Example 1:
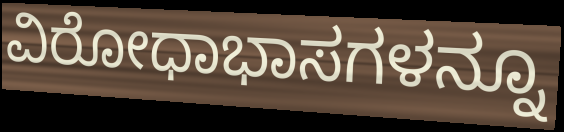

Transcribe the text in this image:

ವಿರೋಧಾಭಾಸಗಳನ್ನೂ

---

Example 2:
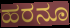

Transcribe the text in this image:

ಹರನೂ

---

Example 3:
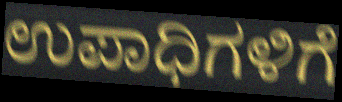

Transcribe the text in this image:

ಉಪಾಧಿಗಳಿಗೆ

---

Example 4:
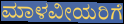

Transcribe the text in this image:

ಮಾಳವೀಯರಿಗೆ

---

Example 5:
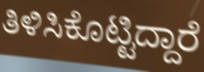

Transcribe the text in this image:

ತಿಳಿಸಿಕೊಟ್ಟಿದ್ದಾರೆ